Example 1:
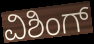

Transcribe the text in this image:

ವಿಶಿಂಗ್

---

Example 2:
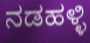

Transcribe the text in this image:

ನಡಹಳ್ಳಿ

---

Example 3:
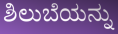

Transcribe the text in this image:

ಶಿಲುಬೆಯನ್ನು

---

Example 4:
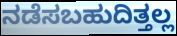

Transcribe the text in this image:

ನಡೆಸಬಹುದಿತ್ತಲ್ಲ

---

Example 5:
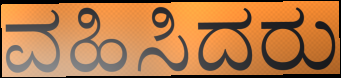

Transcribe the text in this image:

ವಹಿಸಿದರು